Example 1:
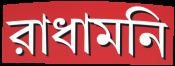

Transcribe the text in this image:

রাধামনি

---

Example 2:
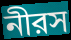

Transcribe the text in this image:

নীরস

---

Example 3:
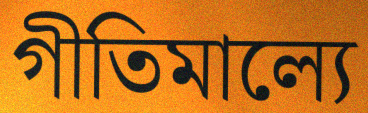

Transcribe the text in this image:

গীতিমাল্যে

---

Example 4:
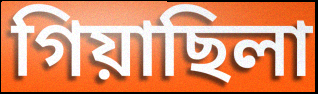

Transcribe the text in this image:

গিয়াছিলা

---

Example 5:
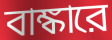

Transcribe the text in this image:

বাঙ্কারে